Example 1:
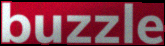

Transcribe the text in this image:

buzzle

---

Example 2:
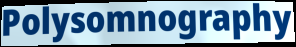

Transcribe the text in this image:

Polysomnography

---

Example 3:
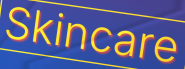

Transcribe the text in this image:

Skincare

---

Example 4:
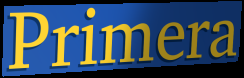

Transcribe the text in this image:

Primera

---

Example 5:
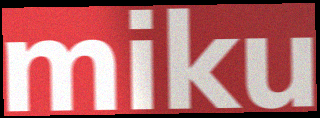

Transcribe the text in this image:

miku